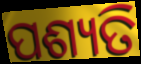
ପଶ୍ୟତି